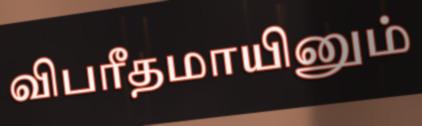
விபரீதமாயினும்